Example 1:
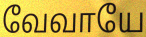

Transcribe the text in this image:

வேவாயே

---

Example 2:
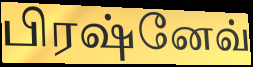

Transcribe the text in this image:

பிரஷ்னேவ்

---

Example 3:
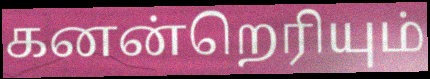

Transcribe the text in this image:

கனன்றெரியும்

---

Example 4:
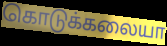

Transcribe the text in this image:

கொடுக்கலையா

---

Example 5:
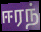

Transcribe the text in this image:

ஈரந்